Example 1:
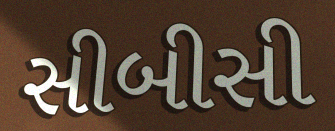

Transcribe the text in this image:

સીબીસી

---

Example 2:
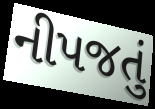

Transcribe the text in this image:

નીપજતું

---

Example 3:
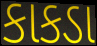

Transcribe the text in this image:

કાકડા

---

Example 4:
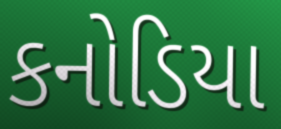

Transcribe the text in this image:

કનોડિયા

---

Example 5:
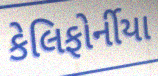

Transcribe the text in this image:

કેલિફોર્નીયા